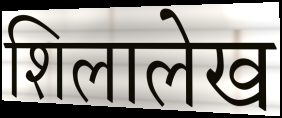
शिलालेख